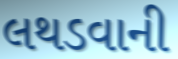
લથડવાની